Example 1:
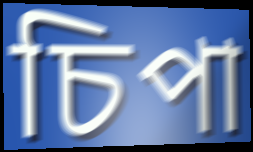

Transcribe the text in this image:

চিপা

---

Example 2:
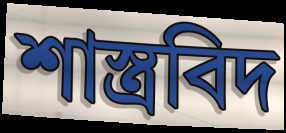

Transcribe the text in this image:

শাস্ত্ৰবিদ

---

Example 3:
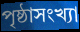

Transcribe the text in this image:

পৃষ্ঠাসংখ্যা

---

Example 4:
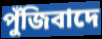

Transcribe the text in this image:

পুঁজিবাদে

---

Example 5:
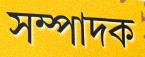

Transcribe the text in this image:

সম্পাদক